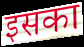
इसका